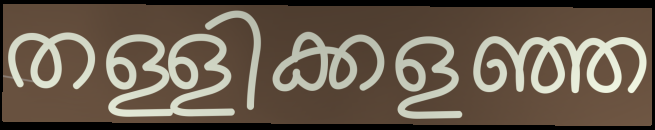
തള്ളിക്കളഞ്ഞ